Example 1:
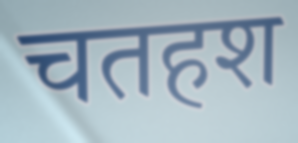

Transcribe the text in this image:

चतहश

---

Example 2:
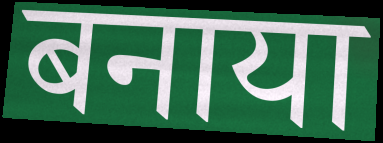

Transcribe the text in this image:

बनाया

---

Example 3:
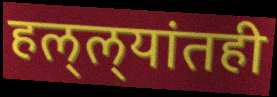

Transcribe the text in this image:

हल्ल्यांतही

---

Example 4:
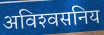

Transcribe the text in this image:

अविश्वसनिय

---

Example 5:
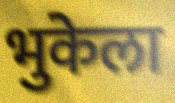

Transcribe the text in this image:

भुकेला